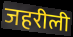
जहरीली